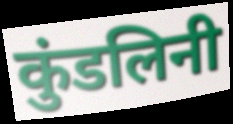
कुंडलिनी